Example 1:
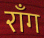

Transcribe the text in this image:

रॉंग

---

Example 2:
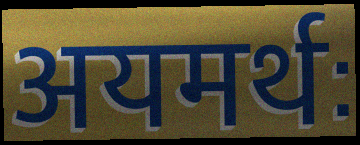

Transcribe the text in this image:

अयमर्थः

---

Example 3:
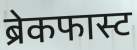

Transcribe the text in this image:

ब्रेकफास्ट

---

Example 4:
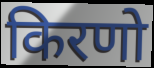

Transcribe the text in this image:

किरणो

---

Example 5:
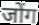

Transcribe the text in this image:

जोंग